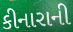
કીનારાની